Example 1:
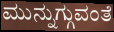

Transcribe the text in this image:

ಮುನ್ನುಗ್ಗುವಂತೆ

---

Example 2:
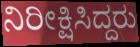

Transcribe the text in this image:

ನಿರೀಕ್ಷಿಸಿದ್ದರು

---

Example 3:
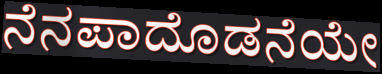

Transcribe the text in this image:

ನೆನಪಾದೊಡನೆಯೇ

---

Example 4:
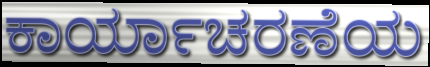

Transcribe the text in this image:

ಕಾರ್ಯಾಚರಣೆಯ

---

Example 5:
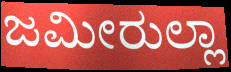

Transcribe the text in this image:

ಜಮೀರುಲ್ಲಾ